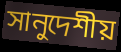
সানুদেশীয়